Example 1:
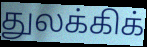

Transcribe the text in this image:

துலக்கிக்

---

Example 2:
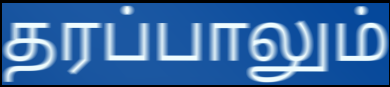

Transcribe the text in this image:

தரப்பாலும்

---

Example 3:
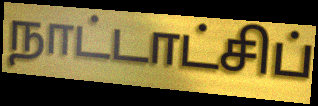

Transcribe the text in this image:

நாட்டாட்சிப்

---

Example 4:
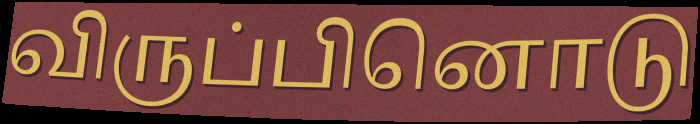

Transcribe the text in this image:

விருப்பினொடு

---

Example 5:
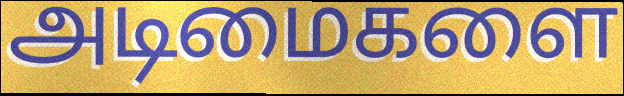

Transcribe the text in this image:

அடிமைகளை